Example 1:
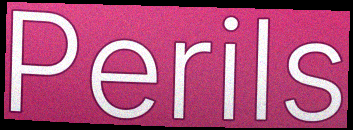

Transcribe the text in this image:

Perils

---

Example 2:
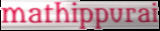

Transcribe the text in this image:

mathippurai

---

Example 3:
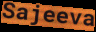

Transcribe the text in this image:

Sajeeva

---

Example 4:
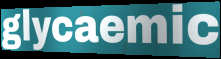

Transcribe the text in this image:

glycaemic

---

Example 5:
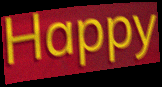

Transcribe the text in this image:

Happy